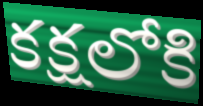
కక్షలోకి